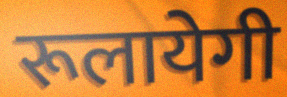
रूलायेगी